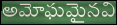
అమోఘమైనవి